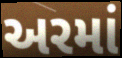
અરમાં